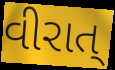
વીરાત્